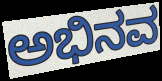
ಅಭಿನವ